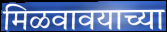
मिळवावयाच्या